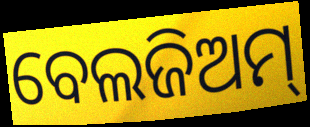
ବେଲଜିଅମ୍